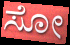
ಸೋ